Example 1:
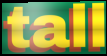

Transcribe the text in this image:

tall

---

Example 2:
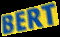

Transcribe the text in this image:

BERT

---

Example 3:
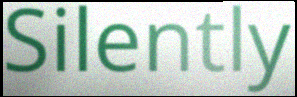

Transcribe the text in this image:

Silently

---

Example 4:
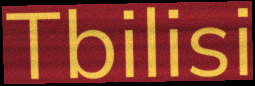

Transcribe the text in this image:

Tbilisi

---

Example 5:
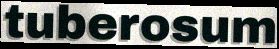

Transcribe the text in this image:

tuberosum